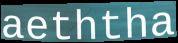
aeththa